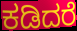
ಕಡಿದರೆ